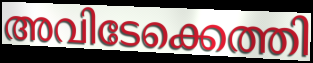
അവിടേക്കെത്തി